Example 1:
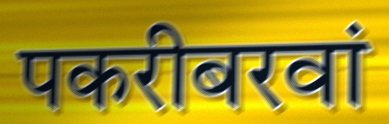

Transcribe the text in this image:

पकरीबरवां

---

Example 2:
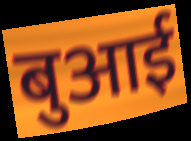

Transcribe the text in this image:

बुआई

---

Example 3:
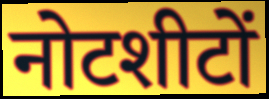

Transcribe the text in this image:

नोटशीटों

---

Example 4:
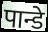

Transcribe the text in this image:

पान्डे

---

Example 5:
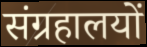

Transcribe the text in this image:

संग्रहालयों